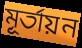
মূর্তায়ন